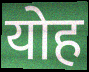
योह